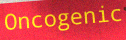
Oncogenic